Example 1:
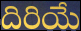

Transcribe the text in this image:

దిరియే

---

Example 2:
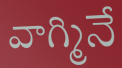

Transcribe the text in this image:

వాగ్మినే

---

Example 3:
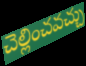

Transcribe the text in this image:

చెల్లించవచ్చు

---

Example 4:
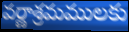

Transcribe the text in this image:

వర్ణాశ్రమములకు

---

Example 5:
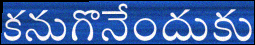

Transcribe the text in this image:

కనుగొనేందుకు